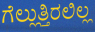
ಗೆಲ್ಲುತ್ತಿರಲಿಲ್ಲ